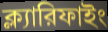
ক্ল্যারিফাইং